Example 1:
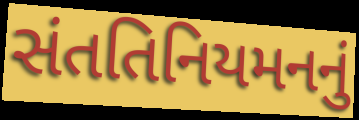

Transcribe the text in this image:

સંતતિનિયમનનું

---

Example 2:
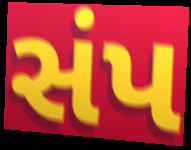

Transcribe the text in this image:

સંપ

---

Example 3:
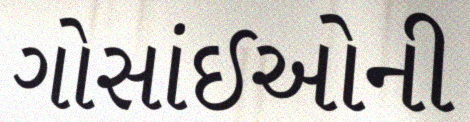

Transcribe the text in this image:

ગોસાંઈઓની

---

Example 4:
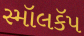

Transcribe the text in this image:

સ્મૉલકૅપ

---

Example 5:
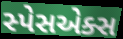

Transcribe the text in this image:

સ્પેસએક્સ